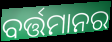
ବର୍ତ୍ତମାନର